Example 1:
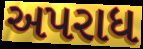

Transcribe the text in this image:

અપરાધ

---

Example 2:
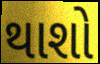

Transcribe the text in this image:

થાશો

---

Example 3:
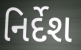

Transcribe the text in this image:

નિર્દેશ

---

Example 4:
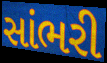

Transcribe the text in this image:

સાંભરી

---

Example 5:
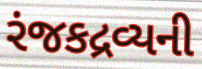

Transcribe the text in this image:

રંજકદ્રવ્યની